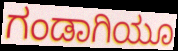
ಗಂಡಾಗಿಯೂ